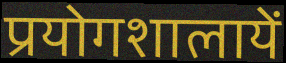
प्रयोगशालायें